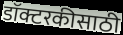
डॉक्टरकीसाठी